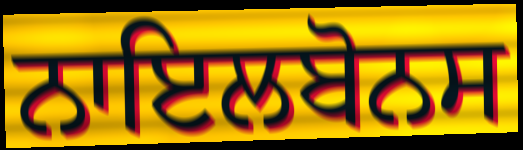
ਨਾਇਲਬੋਨਸ